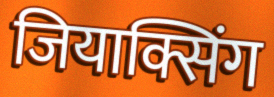
जियाक्सिंग